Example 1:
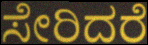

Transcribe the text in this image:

ಸೇರಿದರೆ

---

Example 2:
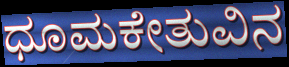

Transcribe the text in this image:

ಧೂಮಕೇತುವಿನ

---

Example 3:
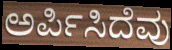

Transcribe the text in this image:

ಅರ್ಪಿಸಿದೆವು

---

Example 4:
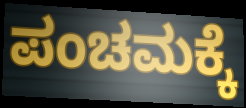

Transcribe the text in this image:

ಪಂಚಮಕ್ಕೆ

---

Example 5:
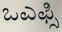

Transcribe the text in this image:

ಒಎಫ್ಸಿ